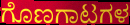
ಗೊಣಗಾಟಗಳ